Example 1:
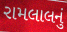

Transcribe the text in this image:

રામલાલનું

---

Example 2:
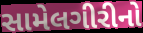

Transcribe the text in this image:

સામેલગીરીનો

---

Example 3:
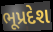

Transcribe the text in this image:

ભૂપ્રદેશ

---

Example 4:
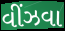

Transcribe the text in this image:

વીંઝવા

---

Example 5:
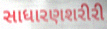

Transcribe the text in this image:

સાધારણશરીરી